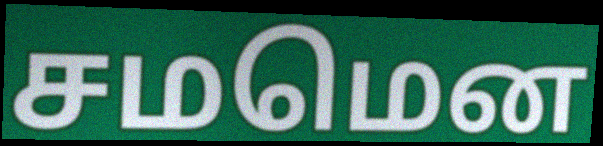
சமமென